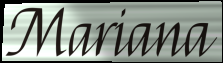
Mariana